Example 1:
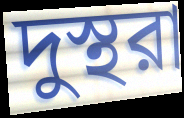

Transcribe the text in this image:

দুস্থরা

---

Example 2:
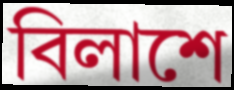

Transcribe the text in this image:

বিলাশে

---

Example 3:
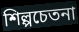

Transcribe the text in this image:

শিল্পচেতনা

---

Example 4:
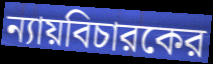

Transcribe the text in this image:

ন্যায়বিচারকের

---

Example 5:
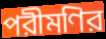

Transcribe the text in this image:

পরীমণির